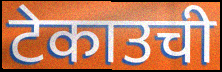
टेकाउची